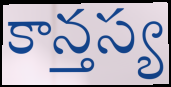
కాన్తస్య